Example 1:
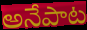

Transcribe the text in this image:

అనేపాట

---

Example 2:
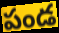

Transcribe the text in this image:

పండ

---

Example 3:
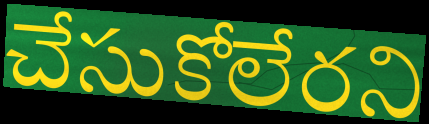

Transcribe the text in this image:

చేసుకోలేరని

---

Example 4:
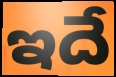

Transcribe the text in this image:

ఇదే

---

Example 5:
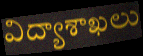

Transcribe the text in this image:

విద్యాశాఖలు